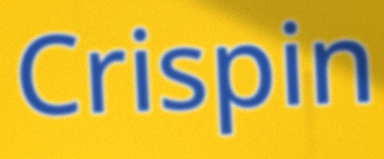
Crispin